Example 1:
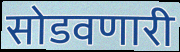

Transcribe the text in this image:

सोडवणारी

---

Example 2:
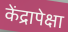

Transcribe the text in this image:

केंद्रापेक्षा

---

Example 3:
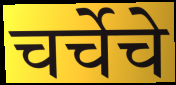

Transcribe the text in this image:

चर्चेचे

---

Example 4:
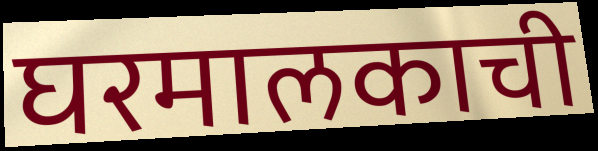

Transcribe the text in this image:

घरमालकाची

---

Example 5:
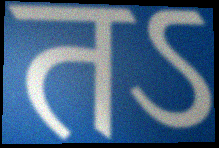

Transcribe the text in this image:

तऽ